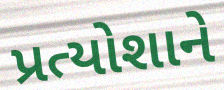
પ્રત્યોશાને